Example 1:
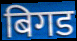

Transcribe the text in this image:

बिगड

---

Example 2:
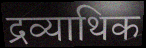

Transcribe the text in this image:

द्रव्याथिक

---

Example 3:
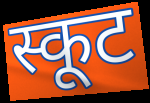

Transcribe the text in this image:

स्कूट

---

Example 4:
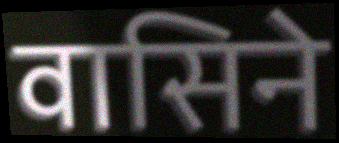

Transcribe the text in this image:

वासिने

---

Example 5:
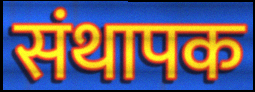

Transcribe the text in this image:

संथापक